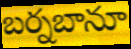
బర్నబానూ